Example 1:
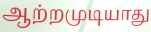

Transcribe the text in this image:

ஆற்றமுடியாது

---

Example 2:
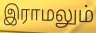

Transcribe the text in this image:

இராமலும்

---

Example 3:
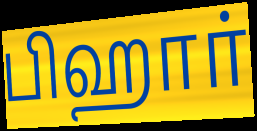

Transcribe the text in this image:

பிஹார்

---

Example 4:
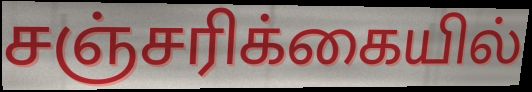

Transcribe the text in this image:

சஞ்சரிக்கையில்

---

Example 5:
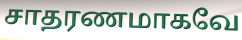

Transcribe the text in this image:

சாதரணமாகவே